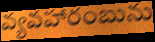
వ్యవహారంబును